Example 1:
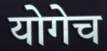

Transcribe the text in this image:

योगेच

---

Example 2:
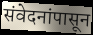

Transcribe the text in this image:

संवेदनांपासून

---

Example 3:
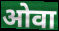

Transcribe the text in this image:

ओवा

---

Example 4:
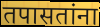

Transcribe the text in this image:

तपासतांना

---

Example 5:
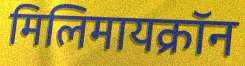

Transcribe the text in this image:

मिलिमायक्रॉन